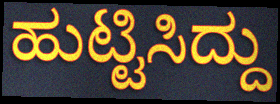
ಹುಟ್ಟಿಸಿದ್ದು